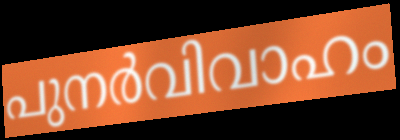
പുനർവിവാഹം